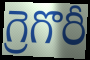
గ్రెగొరీ